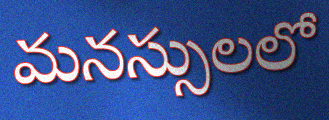
మనస్సులలో